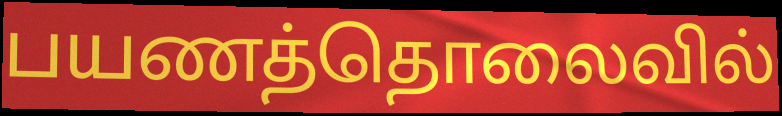
பயணத்தொலைவில்